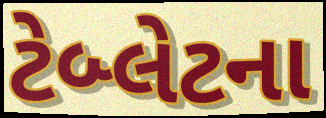
ટેબ્લેટના